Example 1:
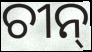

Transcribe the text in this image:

ଚୀନ୍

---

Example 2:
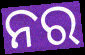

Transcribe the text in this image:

ନର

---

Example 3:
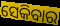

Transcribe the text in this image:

ସେକିବାର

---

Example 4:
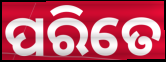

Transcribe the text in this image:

ପରିତେ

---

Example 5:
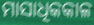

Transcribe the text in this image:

ମାସାଧିକକାଳ